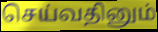
செய்வதினும்